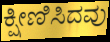
ಕ್ಷೀಣಿಸಿದವು